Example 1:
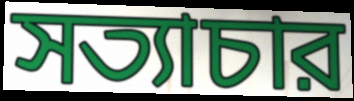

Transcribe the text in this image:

সত্যাচার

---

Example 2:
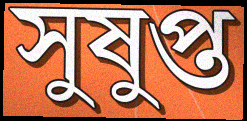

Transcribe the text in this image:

সুষুপ্ত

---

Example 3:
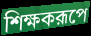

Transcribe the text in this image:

শিক্ষকরূপে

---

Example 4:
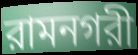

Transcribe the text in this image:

রামনগরী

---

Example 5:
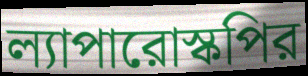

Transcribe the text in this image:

ল্যাপারোস্কপির